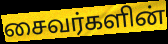
சைவர்களின்